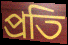
প্রতি